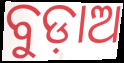
ବୁଡ଼ାଅ